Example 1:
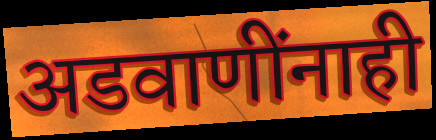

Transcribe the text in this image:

अडवाणींनाही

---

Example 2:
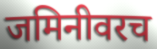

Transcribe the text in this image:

जमिनीवरच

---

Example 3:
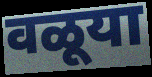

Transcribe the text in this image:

वळूया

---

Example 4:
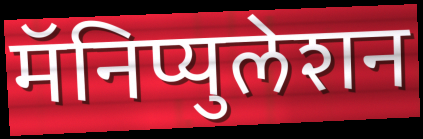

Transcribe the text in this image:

मॅनिप्युलेशन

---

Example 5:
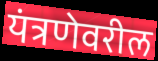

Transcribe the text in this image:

यंत्रणेवरील